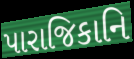
પારાજિકાનિ